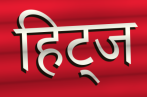
हिट्ज